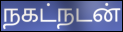
நகட்நடன்